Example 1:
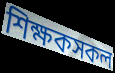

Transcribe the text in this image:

শিক্ষকসকল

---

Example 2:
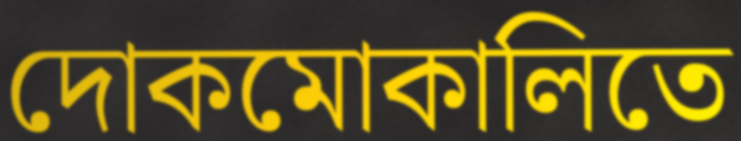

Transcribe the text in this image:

দোকমোকালিতে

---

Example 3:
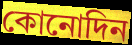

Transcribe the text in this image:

কোনোদিন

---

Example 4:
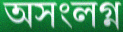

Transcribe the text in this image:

অসংলগ্ন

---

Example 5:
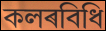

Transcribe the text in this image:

কলৰবিধি